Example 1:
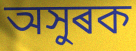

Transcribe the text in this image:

অসুৰক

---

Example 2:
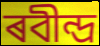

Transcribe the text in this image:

ৰবীন্দ্ৰ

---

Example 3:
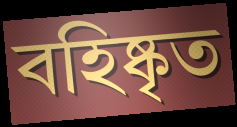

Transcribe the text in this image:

বহিষ্কৃত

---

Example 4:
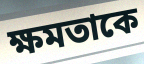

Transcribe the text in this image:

ক্ষমতাকে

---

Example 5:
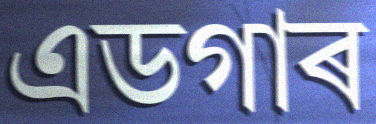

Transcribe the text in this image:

এডগাৰ